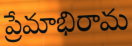
ప్రేమాభిరామ